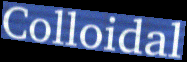
Colloidal